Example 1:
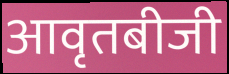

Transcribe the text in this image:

आवृतबीजी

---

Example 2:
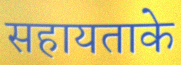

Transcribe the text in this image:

सहायताके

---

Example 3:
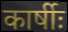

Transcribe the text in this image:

कार्षीः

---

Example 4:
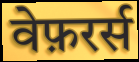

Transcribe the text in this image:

वेफ़रर्स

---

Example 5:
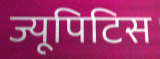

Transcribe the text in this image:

ज्यूपिटिस